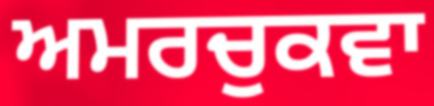
ਅਮਰਚੁਕਵਾ